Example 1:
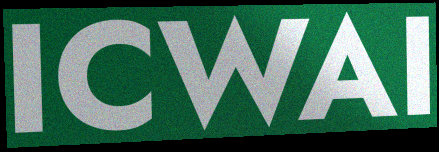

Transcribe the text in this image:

ICWAI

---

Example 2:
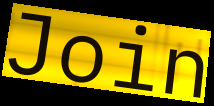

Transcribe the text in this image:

Join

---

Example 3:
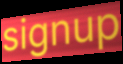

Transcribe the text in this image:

signup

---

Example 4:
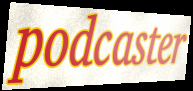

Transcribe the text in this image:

podcaster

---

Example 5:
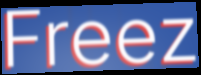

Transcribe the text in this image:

Freez